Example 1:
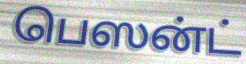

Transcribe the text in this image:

பெஸன்ட்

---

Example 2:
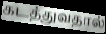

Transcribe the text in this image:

கடத்துவதால்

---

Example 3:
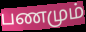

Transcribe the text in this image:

பணமும்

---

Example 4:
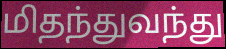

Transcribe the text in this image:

மிதந்துவந்து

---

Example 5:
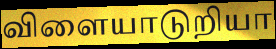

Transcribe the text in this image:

விளையாடுறியா